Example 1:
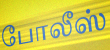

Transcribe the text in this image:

போலீஸ்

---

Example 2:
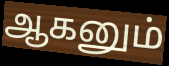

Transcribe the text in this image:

ஆகனும்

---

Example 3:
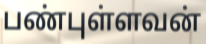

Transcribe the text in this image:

பண்புள்ளவன்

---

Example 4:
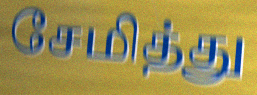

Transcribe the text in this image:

சேமித்து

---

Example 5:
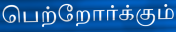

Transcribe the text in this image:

பெற்றோர்க்கும்